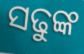
ସଢୁଙ୍କ